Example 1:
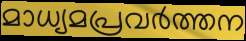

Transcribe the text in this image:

മാധ്യമപ്രവർത്തന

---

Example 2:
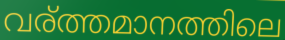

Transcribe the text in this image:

വര്ത്തമാനത്തിലെ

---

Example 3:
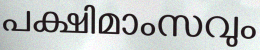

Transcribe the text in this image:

പക്ഷിമാംസവും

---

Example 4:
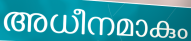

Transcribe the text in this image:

അധീനമാകും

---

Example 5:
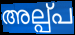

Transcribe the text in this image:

അല്പ്പ